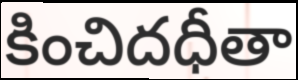
కించిదధీతా